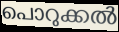
പൊറുക്കൽ